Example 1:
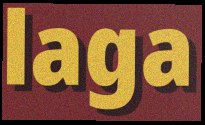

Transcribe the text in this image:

laga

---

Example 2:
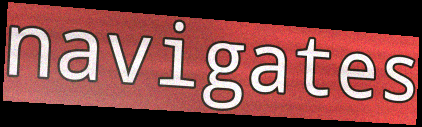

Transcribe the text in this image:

navigates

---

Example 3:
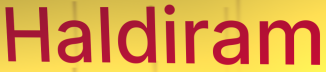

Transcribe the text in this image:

Haldiram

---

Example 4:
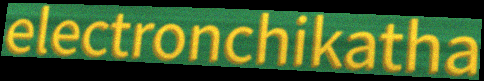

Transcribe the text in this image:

electronchikatha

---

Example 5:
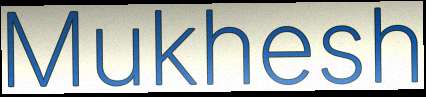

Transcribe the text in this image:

Mukhesh